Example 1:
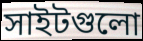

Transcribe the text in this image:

সাইটগুলো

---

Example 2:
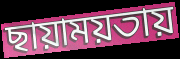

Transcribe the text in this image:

ছায়াময়তায়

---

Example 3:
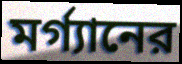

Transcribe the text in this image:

মর্গ্যানের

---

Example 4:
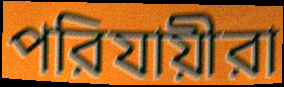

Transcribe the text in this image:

পরিযায়ীরা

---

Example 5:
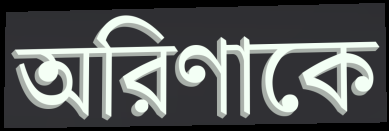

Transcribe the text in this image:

অরিণাকে